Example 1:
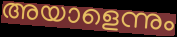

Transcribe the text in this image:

അയാളെന്നും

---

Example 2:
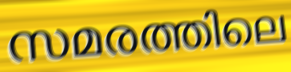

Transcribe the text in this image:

സമരത്തിലെ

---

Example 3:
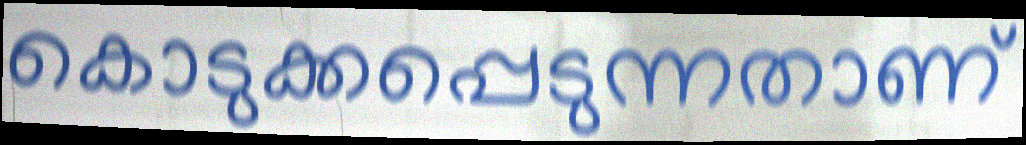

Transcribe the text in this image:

കൊടുക്കപ്പെടുന്നതാണ്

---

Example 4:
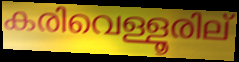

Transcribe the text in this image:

കരിവെള്ളൂരില്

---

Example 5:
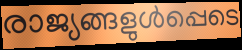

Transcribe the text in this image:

രാജ്യങ്ങളുൾപ്പെടെ